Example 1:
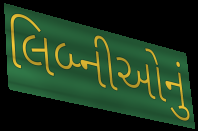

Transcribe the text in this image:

લિબ્નીઓનું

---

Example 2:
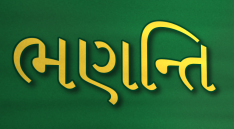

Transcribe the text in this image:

ભણન્તિ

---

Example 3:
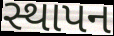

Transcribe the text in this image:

સ્થાપન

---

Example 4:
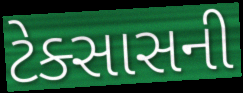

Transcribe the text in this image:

ટેક્સાસની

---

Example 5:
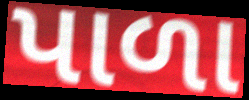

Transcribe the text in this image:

પાળા